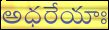
అధరేయాః